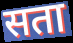
सता